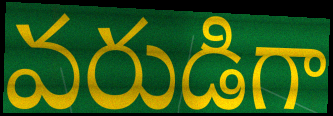
వరుడిగా